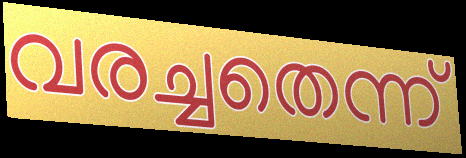
വരച്ചതെന്ന്